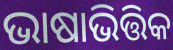
ଭାଷାଭିତ୍ତିକ